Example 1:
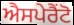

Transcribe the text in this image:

ਐਸਪੇਰੈਂਟੋ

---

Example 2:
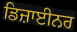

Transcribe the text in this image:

ਡਿਜ਼ਾਈਨਰ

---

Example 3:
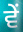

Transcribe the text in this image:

ਵੇਂ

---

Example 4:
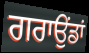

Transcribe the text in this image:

ਗਰਾਉਂਡਾਂ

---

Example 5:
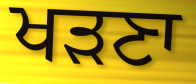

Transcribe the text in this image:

ਖੜਣਾ